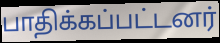
பாதிக்கப்பட்டனர்